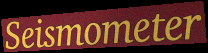
Seismometer